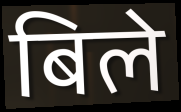
बिले